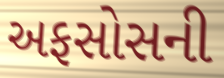
અફસોસની